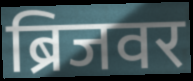
ब्रिजवर